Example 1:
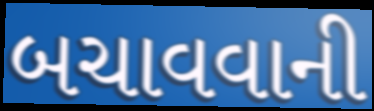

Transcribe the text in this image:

બચાવવાની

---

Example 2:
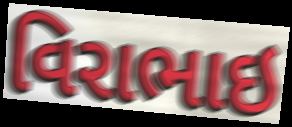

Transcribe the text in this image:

વિરાભાઇ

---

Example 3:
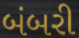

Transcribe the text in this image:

બંબરી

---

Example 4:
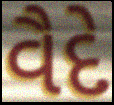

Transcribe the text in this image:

વૈદે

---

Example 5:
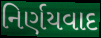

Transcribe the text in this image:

નિર્ણયવાદ